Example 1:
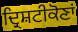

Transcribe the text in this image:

ਦ੍ਰਿਸ਼ਟੀਕੋਣਾਂ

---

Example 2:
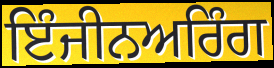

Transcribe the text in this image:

ਇੰਜੀਨਅਰਿੰਗ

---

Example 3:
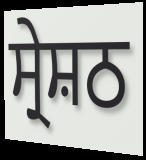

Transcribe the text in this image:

ਸ੍ਰੇਸ਼ਠ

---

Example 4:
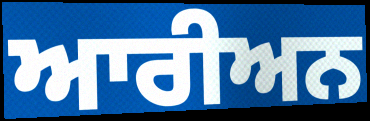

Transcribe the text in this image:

ਆਰੀਅਨ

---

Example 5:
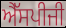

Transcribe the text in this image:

ਐੱਸਪੀਜੀ